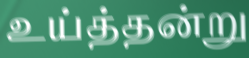
உய்த்தன்று